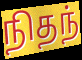
நிதந்